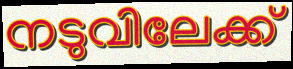
നടുവിലേക്ക്